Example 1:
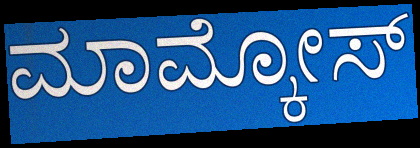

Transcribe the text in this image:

ಮಾಮ್ಕೋಸ್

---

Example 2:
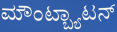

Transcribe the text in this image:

ಮೌಂಟ್ಬ್ಯಾಟನ್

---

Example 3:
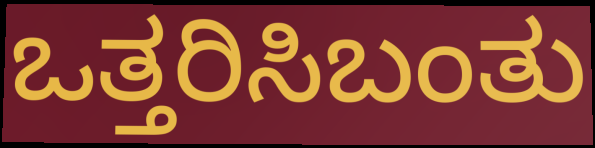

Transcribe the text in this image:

ಒತ್ತರಿಸಿಬಂತು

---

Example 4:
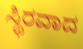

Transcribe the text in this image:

ಸ್ಥಿರವಾದ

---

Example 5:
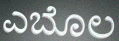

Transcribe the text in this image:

ಎಬೊಲ